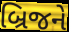
બ્રિજને